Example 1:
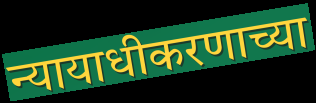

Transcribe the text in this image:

न्यायाधीकरणाच्या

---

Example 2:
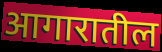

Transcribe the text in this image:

आगारातील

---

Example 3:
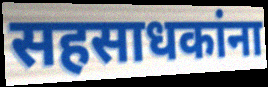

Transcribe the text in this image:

सहसाधकांना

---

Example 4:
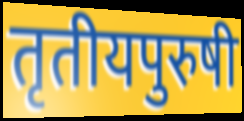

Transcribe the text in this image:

तृतीयपुरुषी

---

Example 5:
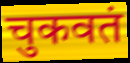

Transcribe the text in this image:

चुकवतं